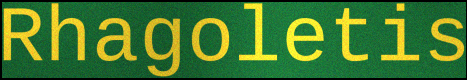
Rhagoletis